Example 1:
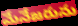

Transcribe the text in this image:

మేనేజరును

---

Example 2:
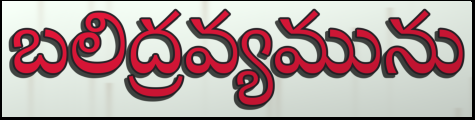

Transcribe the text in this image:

బలిద్రవ్యమును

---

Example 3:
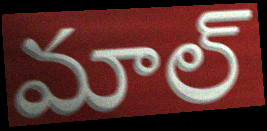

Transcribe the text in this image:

మాల్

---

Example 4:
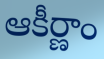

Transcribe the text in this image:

ఆకీర్ణాం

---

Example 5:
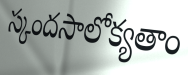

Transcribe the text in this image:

స్కందసాలోక్యతాం